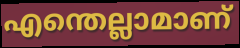
എന്തെല്ലാമാണ്